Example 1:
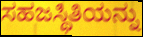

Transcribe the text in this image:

ಸಹಜಸ್ಥಿತಿಯನ್ನು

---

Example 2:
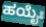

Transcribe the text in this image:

ಹಯೈಃ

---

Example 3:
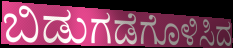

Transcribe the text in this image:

ಬಿಡುಗಡೆಗೊಳಿಸಿದ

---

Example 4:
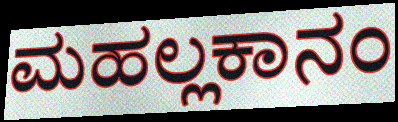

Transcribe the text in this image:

ಮಹಲ್ಲಕಾನಂ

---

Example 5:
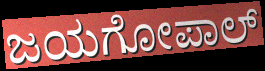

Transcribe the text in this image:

ಜಯಗೋಪಾಲ್